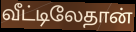
வீட்டிலேதான்